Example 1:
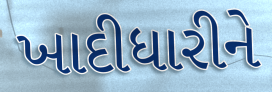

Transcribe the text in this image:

ખાદીધારીને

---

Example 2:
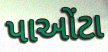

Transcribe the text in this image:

પાઓંટા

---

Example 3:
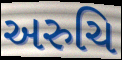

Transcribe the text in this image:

અરુચિ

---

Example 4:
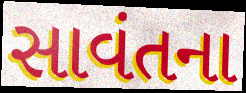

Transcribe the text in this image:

સાવંતના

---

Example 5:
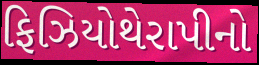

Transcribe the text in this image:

ફિઝિયોથેરાપીનો